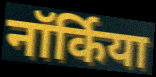
नॉर्किया